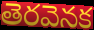
తెరవెనక